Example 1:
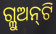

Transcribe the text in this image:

ଗ୍ଲୁଅନ୍‍ଟି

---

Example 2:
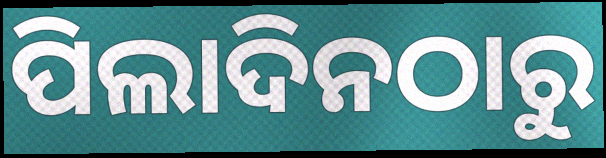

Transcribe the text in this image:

ପିଲାଦିନଠାରୁ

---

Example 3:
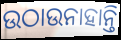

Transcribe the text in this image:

ଉଠାଉନାହାନ୍ତି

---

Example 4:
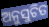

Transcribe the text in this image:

ଅନୁସୁଚିତ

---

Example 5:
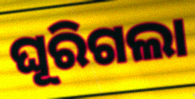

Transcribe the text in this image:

ଘୂରିଗଲା